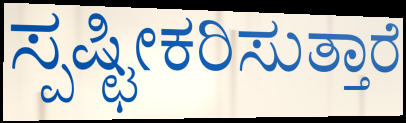
ಸ್ಪಷ್ಟೀಕರಿಸುತ್ತಾರೆ